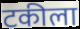
टकीला